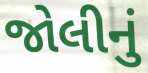
જોલીનું